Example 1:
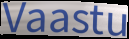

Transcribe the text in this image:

Vaastu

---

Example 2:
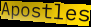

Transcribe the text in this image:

Apostles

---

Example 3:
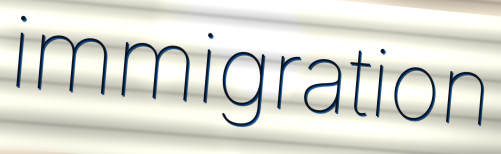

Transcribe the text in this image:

immigration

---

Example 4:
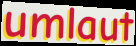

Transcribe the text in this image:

umlaut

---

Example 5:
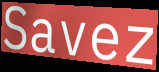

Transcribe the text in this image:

Savez